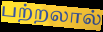
பற்றலால்